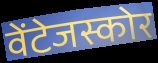
वेंटेजस्कोर